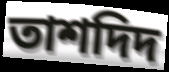
তাশদিদ